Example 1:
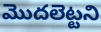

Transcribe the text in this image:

మొదలెట్టని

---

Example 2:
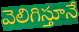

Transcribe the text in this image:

వెలిగిస్తూనే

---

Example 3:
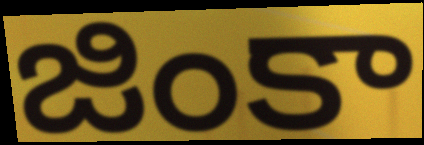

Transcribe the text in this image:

జింకా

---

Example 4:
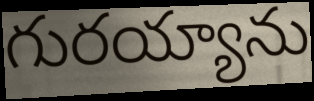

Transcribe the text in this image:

గురయ్యాను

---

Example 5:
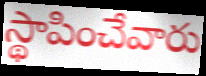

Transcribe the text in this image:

స్థాపించేవారు